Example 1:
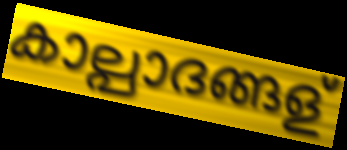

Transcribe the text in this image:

കാല്പാദങ്ങള്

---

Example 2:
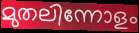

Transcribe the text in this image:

മുതലിന്നോളം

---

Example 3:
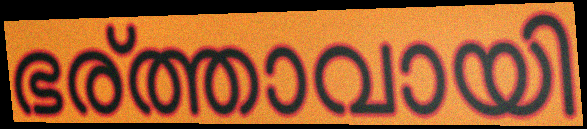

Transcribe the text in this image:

ഭര്ത്താവായി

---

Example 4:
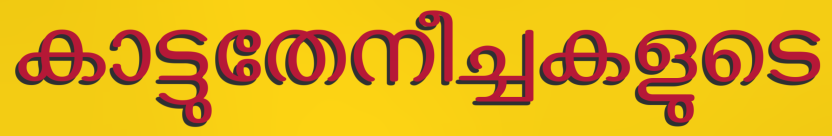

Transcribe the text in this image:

കാട്ടുതേനീച്ചകളുടെ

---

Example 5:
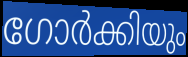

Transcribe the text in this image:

ഗോർക്കിയും